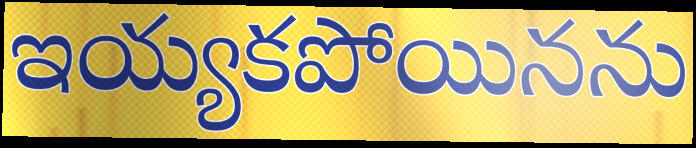
ఇయ్యకపోయినను